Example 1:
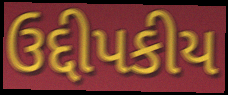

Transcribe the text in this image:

ઉદ્દીપકીય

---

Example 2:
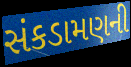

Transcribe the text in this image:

સંકડામણની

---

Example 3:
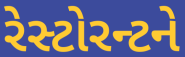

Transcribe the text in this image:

રેસ્ટોરન્ટને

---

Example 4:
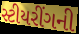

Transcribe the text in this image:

સ્ટીયરીંગની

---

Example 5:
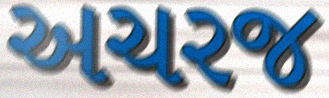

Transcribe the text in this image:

અચરજ